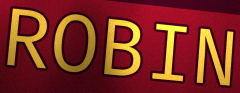
ROBIN